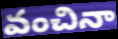
వంచినా